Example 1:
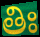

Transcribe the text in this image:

తిః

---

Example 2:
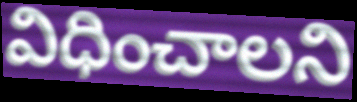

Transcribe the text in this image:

విధించాలని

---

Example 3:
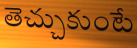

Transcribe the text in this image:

తెచ్చుకుంటే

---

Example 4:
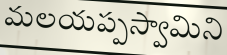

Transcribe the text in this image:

మలయప్పస్వామిని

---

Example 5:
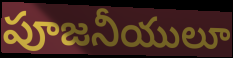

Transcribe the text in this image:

పూజనీయులూ